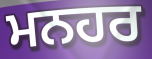
ਮਨਹਰ